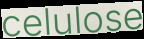
celulose